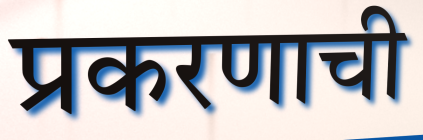
प्रकरणाची